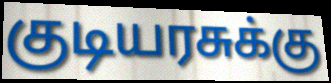
குடியரசுக்கு